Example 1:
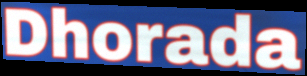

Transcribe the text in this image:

Dhorada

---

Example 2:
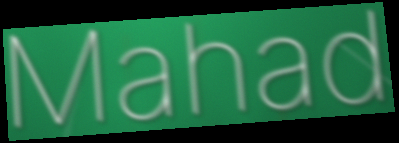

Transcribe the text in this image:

Mahad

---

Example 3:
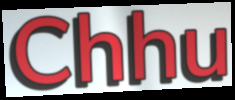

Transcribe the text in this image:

Chhu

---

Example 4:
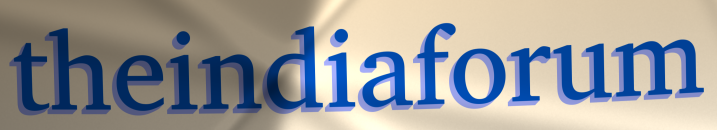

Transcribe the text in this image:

theindiaforum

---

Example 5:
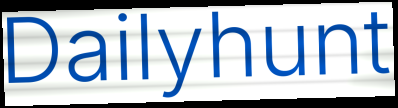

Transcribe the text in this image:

Dailyhunt